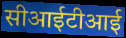
सीआईटीआई